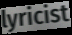
lyricist